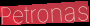
Petronas